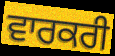
ਵਾਰਕਰੀ